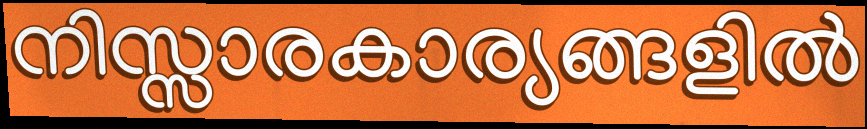
നിസ്സാരകാര്യങ്ങളിൽ